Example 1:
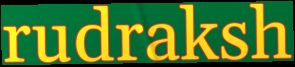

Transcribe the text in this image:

rudraksh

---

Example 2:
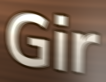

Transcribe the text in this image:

Gir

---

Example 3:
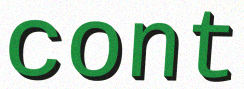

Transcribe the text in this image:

cont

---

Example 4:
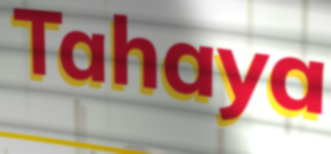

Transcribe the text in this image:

Tahaya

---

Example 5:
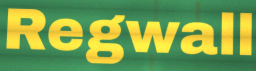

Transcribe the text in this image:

Regwall